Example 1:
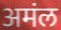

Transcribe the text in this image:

अमंल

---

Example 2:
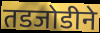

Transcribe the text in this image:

तडजोडीने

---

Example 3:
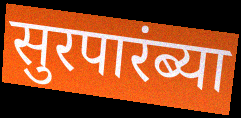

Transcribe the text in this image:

सुरपारंब्या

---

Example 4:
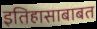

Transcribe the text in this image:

इतिहासाबाबत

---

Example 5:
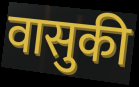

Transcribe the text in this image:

वासुकी